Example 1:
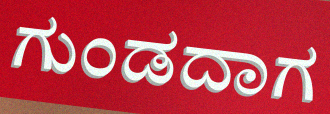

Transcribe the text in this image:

ಗುಂಡದಾಗ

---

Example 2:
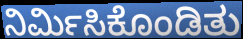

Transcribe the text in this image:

ನಿರ್ಮಿಸಿಕೊಂಡಿತು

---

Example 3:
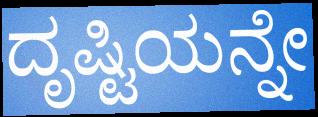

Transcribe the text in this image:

ದೃಷ್ಟಿಯನ್ನೇ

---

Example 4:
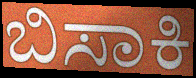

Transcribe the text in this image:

ಬಿಸಾಕಿ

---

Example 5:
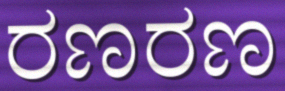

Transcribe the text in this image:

ರಣರಣ